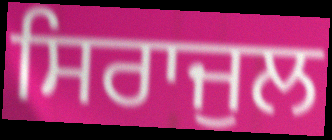
ਸਿਰਾਜੁਲ